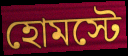
হোমস্টে